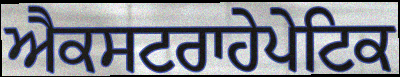
ਐਕਸਟਰਾਹੇਪੇਟਿਕ